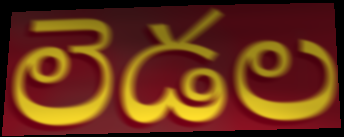
లెడల